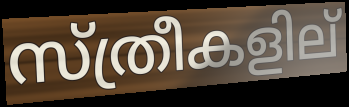
സ്ത്രീകളില്